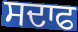
ਸਦਾਫ